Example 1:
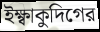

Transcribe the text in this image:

ইক্ষ্বাকুদিগের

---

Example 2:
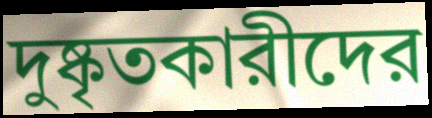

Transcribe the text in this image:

দুষ্কৃতকারীদের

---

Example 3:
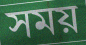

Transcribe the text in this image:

সময়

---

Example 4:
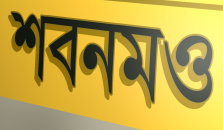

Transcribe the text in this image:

শবনমও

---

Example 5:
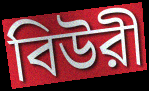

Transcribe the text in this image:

বিউরী